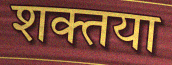
शक्तया